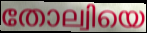
തോല്വിയെ